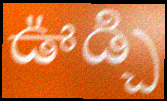
ఊడ్చి